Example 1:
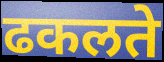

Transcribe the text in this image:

ढकलते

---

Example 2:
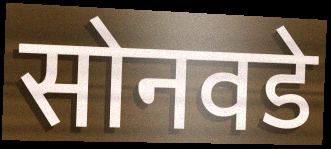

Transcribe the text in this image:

सोनवडे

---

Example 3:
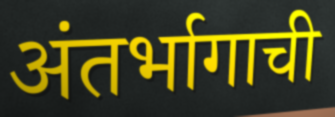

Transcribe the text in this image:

अंतर्भागाची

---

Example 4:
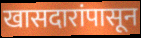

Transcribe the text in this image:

खासदारांपासून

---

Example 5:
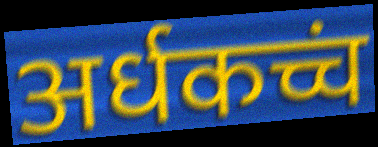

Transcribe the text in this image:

अर्धकच्चं